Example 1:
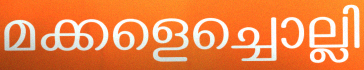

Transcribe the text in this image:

മക്കളെച്ചൊല്ലി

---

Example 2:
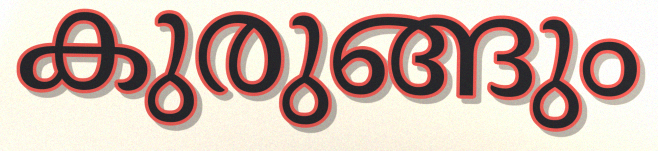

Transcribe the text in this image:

കുരുങ്ങും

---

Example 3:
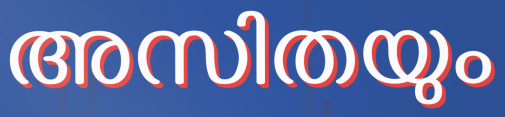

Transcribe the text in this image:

അസിതയും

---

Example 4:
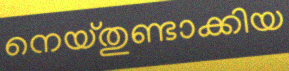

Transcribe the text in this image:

നെയ്തുണ്ടാക്കിയ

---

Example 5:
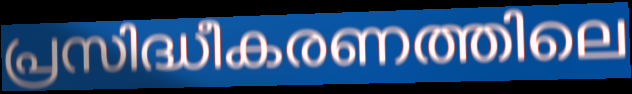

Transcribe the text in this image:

പ്രസിദ്ധീകരണത്തിലെ